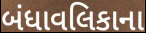
બંધાવલિકાના